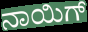
ನಾಯಿಗ್